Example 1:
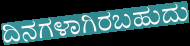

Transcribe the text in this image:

ದಿನಗಳಾಗಿರಬಹುದು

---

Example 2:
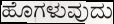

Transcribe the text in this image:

ಹೊಗಳುವುದು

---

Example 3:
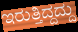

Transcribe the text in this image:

ಇರುತ್ತಿದ್ದದ್ದು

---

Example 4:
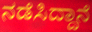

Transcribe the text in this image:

ನಡೆಸಿದ್ದಾನೆ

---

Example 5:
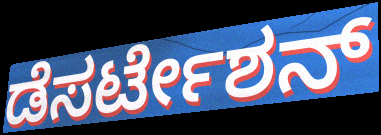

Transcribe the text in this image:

ಡೆಸರ್ಟೇಶನ್